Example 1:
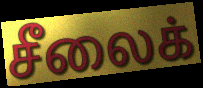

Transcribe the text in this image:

சீலைக்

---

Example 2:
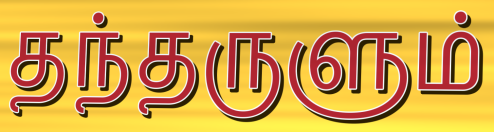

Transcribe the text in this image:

தந்தருளும்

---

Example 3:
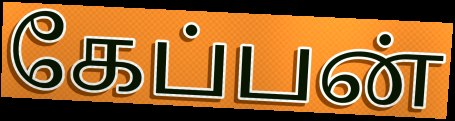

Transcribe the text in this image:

கேப்பன்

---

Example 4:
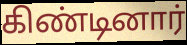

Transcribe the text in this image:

கிண்டினார்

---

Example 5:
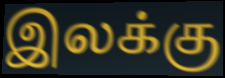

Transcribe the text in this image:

இலக்கு